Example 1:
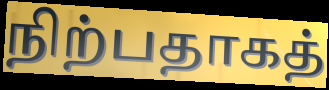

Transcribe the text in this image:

நிற்பதாகத்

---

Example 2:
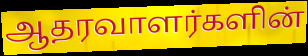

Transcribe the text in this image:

ஆதரவாளர்களின்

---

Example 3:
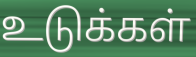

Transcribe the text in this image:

உடுக்கள்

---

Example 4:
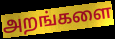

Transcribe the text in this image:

அறங்களை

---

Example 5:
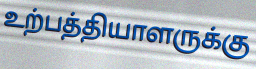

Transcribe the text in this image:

உற்பத்தியாளருக்கு